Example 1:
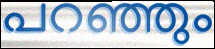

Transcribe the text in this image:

പറഞ്ഞും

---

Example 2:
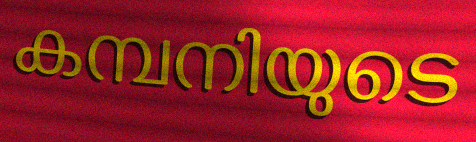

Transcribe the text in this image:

കമ്പനിയുടെ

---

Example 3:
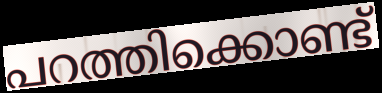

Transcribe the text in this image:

പറത്തിക്കൊണ്ട്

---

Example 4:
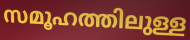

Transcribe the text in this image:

സമൂഹത്തിലുള്ള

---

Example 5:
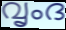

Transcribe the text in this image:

വൃംദ